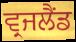
ਵ੍ਰਜਲੈਂਡ